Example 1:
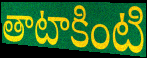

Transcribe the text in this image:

తాటాకింటి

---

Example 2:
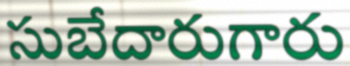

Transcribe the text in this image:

సుబేదారుగారు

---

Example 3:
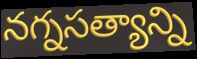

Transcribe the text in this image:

నగ్నసత్యాన్ని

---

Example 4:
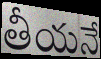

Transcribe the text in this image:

తీయనే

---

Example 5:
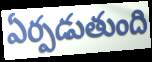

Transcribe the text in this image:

ఏర్పడుతుంది